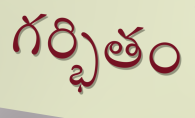
గర్భితం